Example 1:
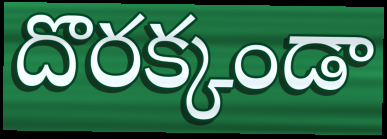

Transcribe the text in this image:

దొరక్కండా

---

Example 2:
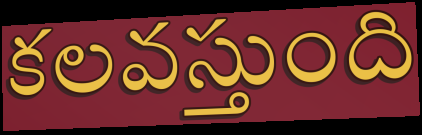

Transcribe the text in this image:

కలవస్తుంది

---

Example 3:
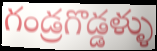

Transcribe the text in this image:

గండ్రగొడ్డళ్ళు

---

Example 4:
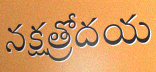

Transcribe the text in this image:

నక్షత్రోదయ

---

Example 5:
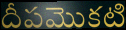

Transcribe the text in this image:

దీపమొకటి